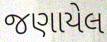
જણાયેલ